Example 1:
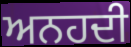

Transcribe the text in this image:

ਅਨਹਦੀ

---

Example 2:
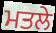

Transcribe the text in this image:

ਮਤਲੇ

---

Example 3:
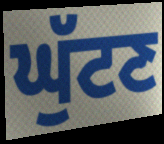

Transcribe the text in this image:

ਘੁੱਟਣ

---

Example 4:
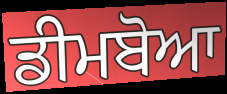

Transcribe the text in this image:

ਡੀਮਬੋਆ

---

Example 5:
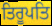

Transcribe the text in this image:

ਤਿਰੂਪਤਿ